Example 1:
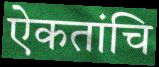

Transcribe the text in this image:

ऐकतांचि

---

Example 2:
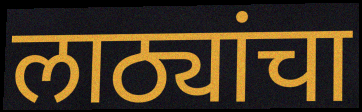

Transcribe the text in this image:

लाठ्यांचा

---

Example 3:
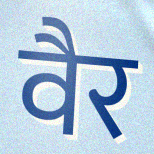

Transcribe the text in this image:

वैर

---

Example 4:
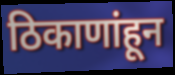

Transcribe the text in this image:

ठिकाणांहून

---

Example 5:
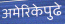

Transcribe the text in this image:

अमेरिकेपुढे